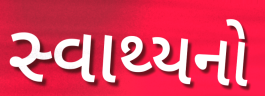
સ્વાથ્યનો